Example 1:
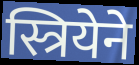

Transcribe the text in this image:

स्त्रियेने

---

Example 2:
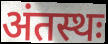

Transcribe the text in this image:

अंतस्थः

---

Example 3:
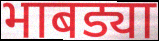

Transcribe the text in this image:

भाबड्या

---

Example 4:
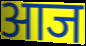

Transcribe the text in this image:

आज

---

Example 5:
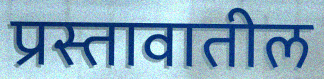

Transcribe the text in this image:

प्रस्तावातील